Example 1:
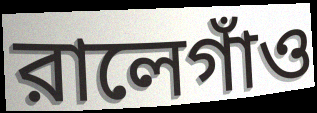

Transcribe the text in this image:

রালেগাঁও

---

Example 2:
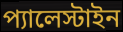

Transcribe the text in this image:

প্যালেস্টাইন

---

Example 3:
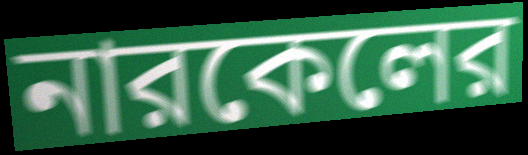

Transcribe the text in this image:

নারকেলের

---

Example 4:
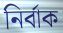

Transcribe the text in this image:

নির্বাক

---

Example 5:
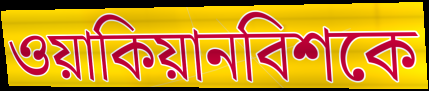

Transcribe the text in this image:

ওয়াকিয়ানবিশকে